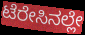
ಟೆರೇಸಿನಲ್ಲೇ